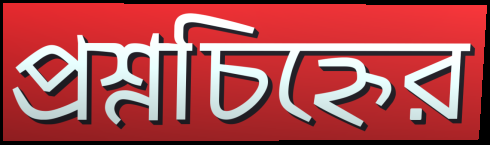
প্রশ্নচিহ্নের